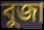
বুজা